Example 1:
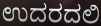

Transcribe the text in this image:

ಉದರದಲಿ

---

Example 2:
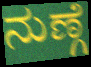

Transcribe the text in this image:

ನುಣ್ಗೆ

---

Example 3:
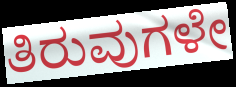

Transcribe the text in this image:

ತಿರುವುಗಳೇ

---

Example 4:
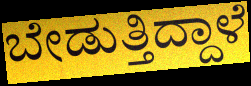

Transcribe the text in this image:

ಬೇಡುತ್ತಿದ್ದಾಳೆ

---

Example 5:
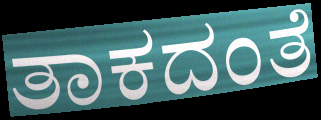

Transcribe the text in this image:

ತಾಕದಂತೆ